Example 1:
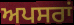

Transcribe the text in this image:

ਅਪਸਰਾਂ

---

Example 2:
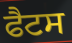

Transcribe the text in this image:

ਫੈਟਸ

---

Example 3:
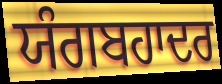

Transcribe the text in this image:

ਯੰਗਬਹਾਦਰ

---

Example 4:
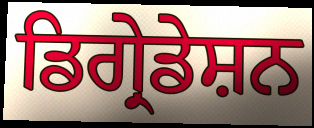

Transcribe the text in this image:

ਡਿਗ੍ਰੇਡੇਸ਼ਨ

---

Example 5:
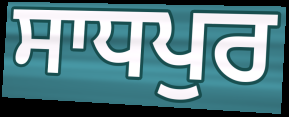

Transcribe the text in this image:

ਸਾਧਪੁਰ